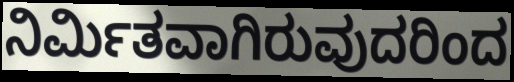
ನಿರ್ಮಿತವಾಗಿರುವುದರಿಂದ